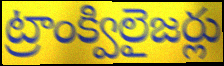
ట్రాంక్విలైజర్లు